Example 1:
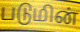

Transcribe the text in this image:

படுமின்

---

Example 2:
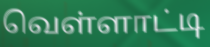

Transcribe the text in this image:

வெள்ளாட்டி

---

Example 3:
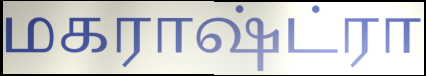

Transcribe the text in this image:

மகராஷ்ட்ரா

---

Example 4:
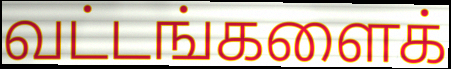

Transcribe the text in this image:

வட்டங்களைக்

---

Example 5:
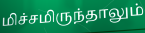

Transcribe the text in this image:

மிச்சமிருந்தாலும்